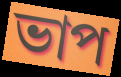
ভাপ